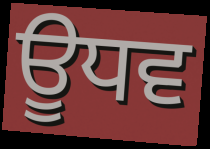
ਊਧਵ